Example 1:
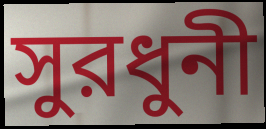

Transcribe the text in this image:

সুরধুনী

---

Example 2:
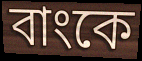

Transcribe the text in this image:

বাংকে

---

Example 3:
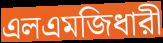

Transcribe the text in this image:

এলএমজিধারী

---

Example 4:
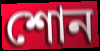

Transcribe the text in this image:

শোন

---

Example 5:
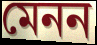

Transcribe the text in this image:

মেনন